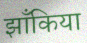
झाँकिया